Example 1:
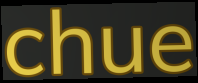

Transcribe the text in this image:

chue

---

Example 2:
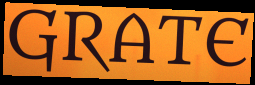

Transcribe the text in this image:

GRATE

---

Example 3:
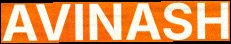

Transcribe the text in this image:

AVINASH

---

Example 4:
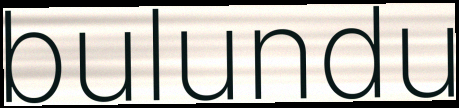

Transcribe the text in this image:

bulundu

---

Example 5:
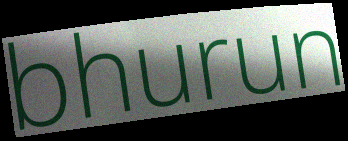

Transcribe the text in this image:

bhurun